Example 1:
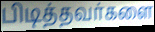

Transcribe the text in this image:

பிடித்தவர்களை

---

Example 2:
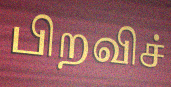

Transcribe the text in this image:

பிறவிச்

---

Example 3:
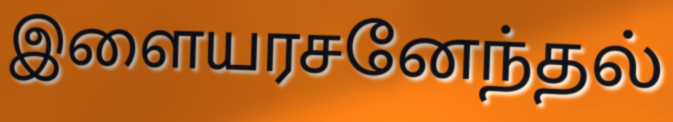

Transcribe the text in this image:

இளையரசனேந்தல்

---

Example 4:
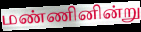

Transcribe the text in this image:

மண்ணினின்று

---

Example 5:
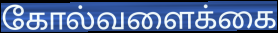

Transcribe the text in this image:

கோல்வளைக்கை